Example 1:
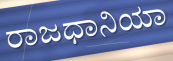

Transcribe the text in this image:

ರಾಜಧಾನಿಯಾ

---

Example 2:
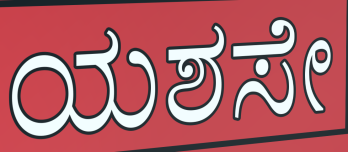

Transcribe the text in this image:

ಯಶಸೇ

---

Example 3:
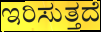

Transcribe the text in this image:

ಇರಿಸುತ್ತದೆ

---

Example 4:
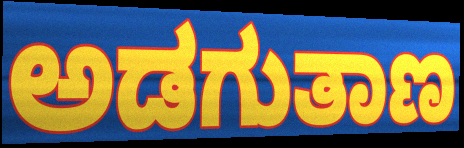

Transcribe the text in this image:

ಅಡಗುತಾಣ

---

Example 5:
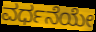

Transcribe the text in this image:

ವರ್ಧನೆಯೇ